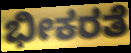
ಭೀಕರತೆ